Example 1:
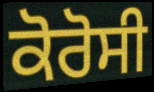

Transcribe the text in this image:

ਕੋਰੋਸੀ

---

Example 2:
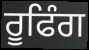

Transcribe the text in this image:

ਰੂਫਿੰਗ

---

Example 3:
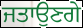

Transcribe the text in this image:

ਜਤਾਉਣਗੇ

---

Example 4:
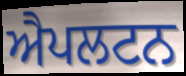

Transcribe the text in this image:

ਐਪਲਟਨ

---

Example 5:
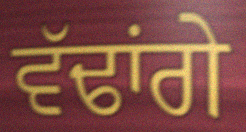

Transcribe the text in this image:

ਵੱਢਾਂਗੇ